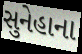
સુનેહાના